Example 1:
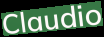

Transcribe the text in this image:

Claudio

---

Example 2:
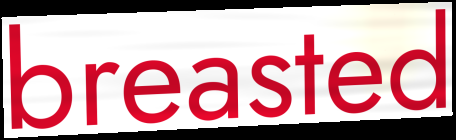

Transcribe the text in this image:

breasted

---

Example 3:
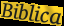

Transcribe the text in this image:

Biblica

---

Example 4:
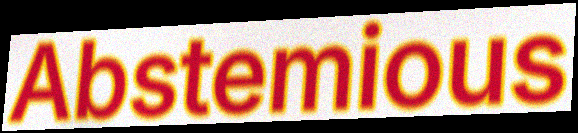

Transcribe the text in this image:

Abstemious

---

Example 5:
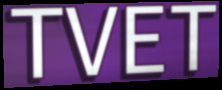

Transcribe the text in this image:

TVET